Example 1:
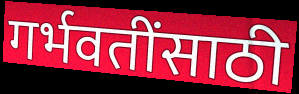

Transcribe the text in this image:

गर्भवतींसाठी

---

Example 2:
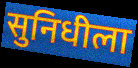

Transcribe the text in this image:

सुनिधीला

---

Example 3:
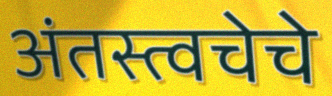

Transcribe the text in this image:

अंतस्त्वचेचे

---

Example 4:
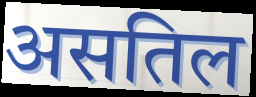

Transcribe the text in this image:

असतिल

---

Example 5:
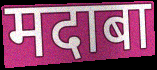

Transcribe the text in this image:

मदाबा